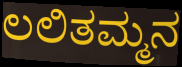
ಲಲಿತಮ್ಮನ